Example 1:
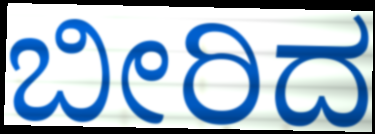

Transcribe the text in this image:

ಬೀರಿದ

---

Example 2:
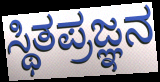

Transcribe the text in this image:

ಸ್ಥಿತಪ್ರಜ್ಞನ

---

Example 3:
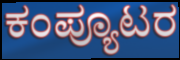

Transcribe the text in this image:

ಕಂಪ್ಯೂಟರ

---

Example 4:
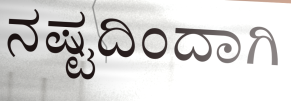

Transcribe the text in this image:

ನಷ್ಟದಿಂದಾಗಿ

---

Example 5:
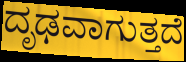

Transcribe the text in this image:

ದೃಢವಾಗುತ್ತದೆ